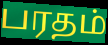
பரதம்